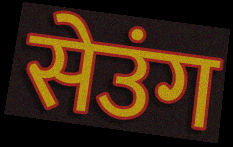
सेउंग